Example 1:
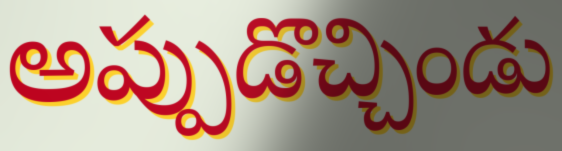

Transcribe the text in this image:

అప్పుడొచ్చిండు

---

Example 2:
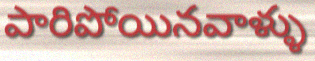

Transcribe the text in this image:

పారిపోయినవాళ్ళు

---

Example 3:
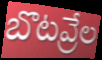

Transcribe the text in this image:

బొటవ్రేల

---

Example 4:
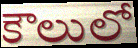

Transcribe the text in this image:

కౌలులో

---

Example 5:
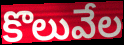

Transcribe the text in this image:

కొలువేల